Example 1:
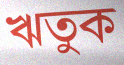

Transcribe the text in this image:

ঋতুক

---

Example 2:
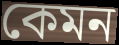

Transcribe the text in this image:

কেমন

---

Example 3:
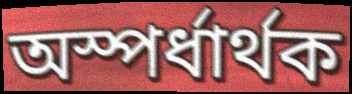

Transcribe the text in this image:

অস্পৰ্ধাৰ্থক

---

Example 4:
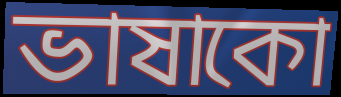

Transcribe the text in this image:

ভাষাকো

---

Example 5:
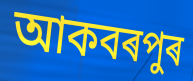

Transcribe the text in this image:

আকবৰপুৰ